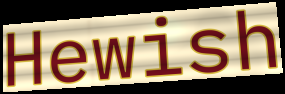
Hewish